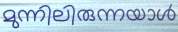
മുന്നിലിരുന്നയാൾ